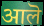
आलॆ